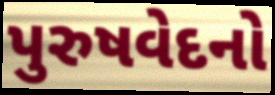
પુરુષવેદનો